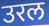
उरल